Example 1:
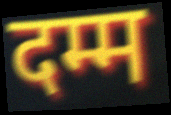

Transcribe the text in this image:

दम्म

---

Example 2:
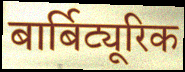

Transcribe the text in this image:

बार्बिट्यूरिक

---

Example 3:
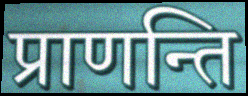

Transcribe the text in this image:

प्राणन्ति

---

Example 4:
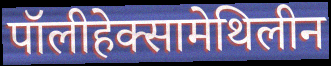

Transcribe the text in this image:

पॉलीहेक्सामेथिलीन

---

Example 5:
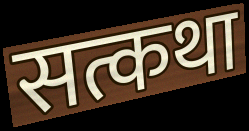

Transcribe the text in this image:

सत्कथा